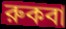
রুকবা